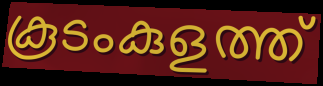
കൂടംകുളത്ത്